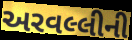
અરવલ્લીની